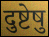
दुष्टेषु